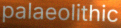
palaeolithic